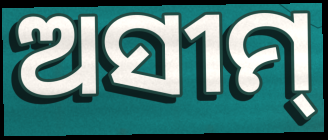
ଅସୀମ୍